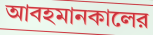
আবহমানকালের